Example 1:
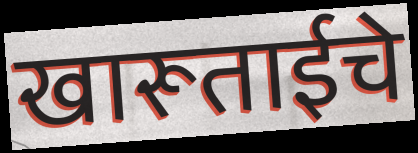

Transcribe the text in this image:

खारूताईचे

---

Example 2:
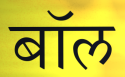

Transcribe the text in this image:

बॉल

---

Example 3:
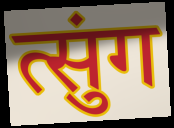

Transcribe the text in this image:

त्सुंग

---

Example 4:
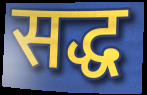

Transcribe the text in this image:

सद्ध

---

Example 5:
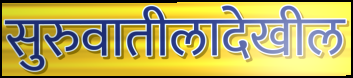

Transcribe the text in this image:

सुरुवातीलादेखील